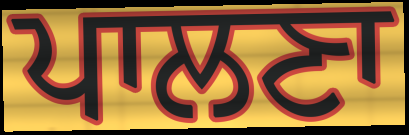
ਪਾਲਣਾ